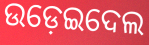
ଉଡ଼େଇଦେଲ